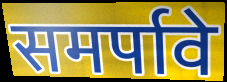
समर्पावे